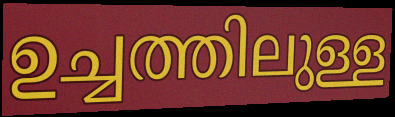
ഉച്ചത്തിലുള്ള